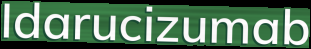
Idarucizumab